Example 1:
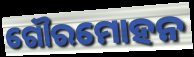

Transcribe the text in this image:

ଗୌରମୋହନ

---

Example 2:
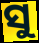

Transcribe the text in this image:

ସୁ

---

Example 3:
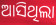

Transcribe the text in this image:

ଆସିଥିଲା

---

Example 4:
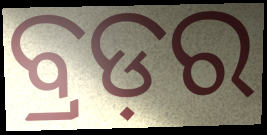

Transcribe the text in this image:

ବ୍ରଡ଼ର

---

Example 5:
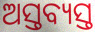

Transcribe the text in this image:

ଅସ୍ତବ୍ୟସ୍ତ